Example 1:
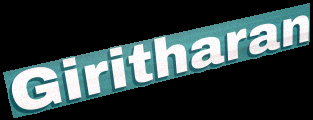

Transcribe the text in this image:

Giritharan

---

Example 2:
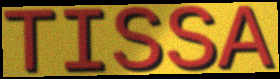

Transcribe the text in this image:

TISSA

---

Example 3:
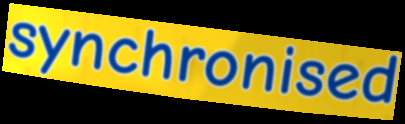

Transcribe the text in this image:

synchronised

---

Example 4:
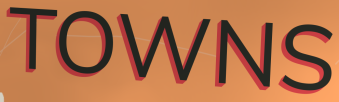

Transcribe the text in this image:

TOWNS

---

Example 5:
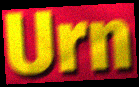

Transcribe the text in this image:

Urn